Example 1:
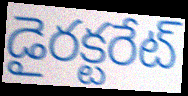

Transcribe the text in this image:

డైరక్టరేట్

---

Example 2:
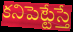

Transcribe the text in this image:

కనిపెట్టేస్తే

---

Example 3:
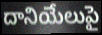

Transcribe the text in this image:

దానియేలుపై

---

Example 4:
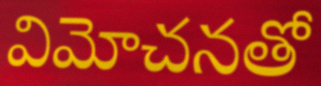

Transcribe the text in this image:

విమోచనతో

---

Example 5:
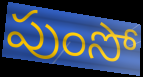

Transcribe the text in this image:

పుంసో